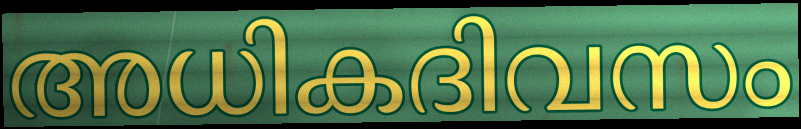
അധികദിവസം